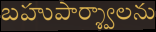
బహుపార్శ్వాలను